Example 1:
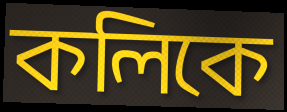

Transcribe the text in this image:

কলিকে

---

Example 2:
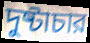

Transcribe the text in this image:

দুষ্টাচার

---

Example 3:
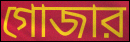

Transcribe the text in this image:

গোজার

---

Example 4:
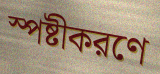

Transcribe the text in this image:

স্পষ্টীকরণে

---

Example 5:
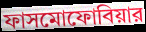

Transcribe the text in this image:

ফাসমোফোবিয়ার